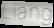
Liang